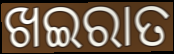
ଖଇରାତ